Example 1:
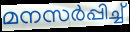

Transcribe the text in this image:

മനസർപ്പിച്ച്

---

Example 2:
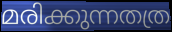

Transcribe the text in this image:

മരിക്കുന്നതത്ര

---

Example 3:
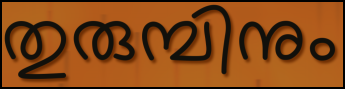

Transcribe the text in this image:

തുരുമ്പിനും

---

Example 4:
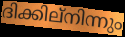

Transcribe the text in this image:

ദിക്കില്നിന്നും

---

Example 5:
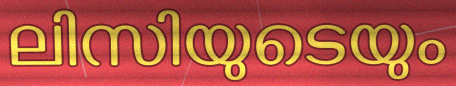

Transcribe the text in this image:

ലിസിയുടെയും